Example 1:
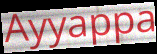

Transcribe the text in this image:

Ayyappa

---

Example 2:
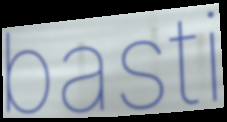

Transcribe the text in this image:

basti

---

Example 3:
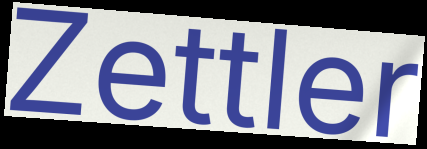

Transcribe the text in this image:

Zettler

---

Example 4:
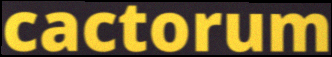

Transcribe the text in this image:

cactorum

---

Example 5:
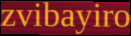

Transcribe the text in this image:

zvibayiro